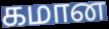
கமான